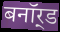
बनॉर्ड